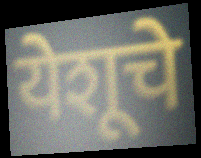
येशूचे